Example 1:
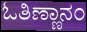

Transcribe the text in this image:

ಓತಿಣ್ಣಾನಂ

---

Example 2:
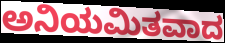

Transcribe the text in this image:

ಅನಿಯಮಿತವಾದ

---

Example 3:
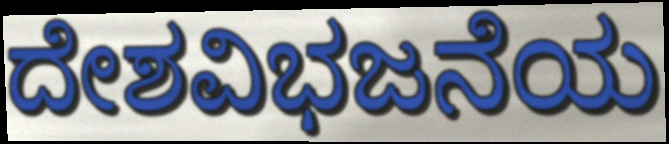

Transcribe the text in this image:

ದೇಶವಿಭಜನೆಯ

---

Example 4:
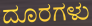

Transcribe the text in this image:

ದೂರಗಳು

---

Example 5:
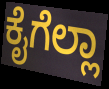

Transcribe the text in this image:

ಕೈಗೆಲ್ಲಾ